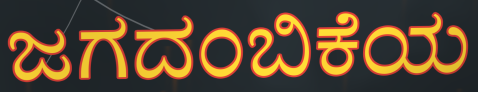
ಜಗದಂಬಿಕೆಯ